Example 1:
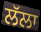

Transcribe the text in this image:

ਲੱਲਾ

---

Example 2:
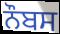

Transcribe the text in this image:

ਨੌਬਸ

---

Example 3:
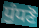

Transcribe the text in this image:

ਧੁੰਧਣੋ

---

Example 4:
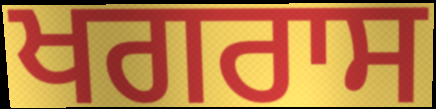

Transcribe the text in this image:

ਖਗਰਾਸ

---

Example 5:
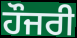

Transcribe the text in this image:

ਹੌਜਰੀ